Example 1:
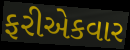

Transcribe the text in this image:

ફરીએકવાર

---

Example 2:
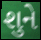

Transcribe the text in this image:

શુને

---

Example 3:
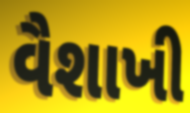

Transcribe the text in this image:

વૈશાખી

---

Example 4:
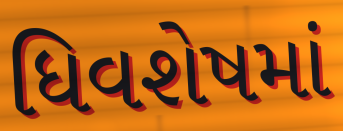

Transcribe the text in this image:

ધિવશેષમાં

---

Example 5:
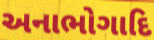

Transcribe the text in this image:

અનાભોગાદિ